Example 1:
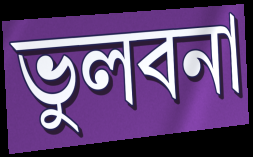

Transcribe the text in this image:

ভুলবনা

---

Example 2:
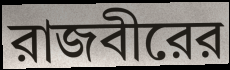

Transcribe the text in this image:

রাজবীরের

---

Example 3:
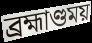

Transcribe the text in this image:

ব্রহ্মাণ্ডময়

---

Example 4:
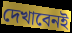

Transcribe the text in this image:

দেখাবেনই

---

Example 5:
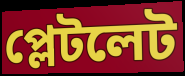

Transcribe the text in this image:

প্লেটলেট